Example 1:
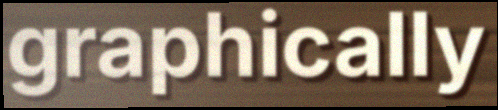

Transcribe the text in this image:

graphically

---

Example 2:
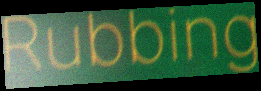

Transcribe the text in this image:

Rubbing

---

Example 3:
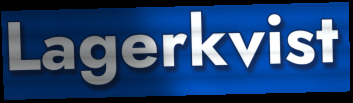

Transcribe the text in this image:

Lagerkvist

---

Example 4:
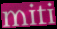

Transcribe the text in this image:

miti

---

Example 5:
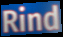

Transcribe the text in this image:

Rind